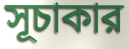
সূচাকার